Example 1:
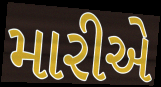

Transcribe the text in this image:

મારીએ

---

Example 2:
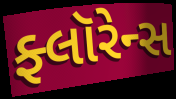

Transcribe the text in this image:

ફ્લૉરેન્સ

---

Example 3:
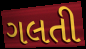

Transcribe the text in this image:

ગલતી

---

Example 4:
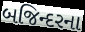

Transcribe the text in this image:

બજિન્દરના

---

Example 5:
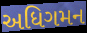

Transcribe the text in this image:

અધિગમન